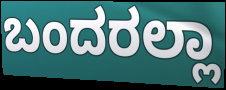
ಬಂದರಲ್ಲಾ